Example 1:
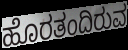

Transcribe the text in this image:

ಹೊರತಂದಿರುವ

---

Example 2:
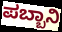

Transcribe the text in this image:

ಪಬ್ಬಾನಿ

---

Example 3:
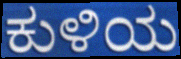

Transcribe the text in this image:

ಕುಳಿಯ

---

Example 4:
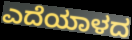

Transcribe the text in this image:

ಎದೆಯಾಳದ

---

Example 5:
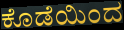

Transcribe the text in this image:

ಕೊಡೆಯಿಂದ